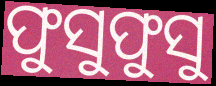
ଫୁସୁଫୁସୁ